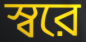
স্বরে